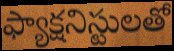
ఫ్యాక్షనిస్టులతో